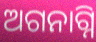
ଅଗନାଗ୍ନି